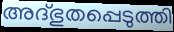
അദ്ഭുതപ്പെടുത്തി